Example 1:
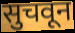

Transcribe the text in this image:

सुचवून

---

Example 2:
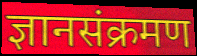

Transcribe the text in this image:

ज्ञानसंक्रमण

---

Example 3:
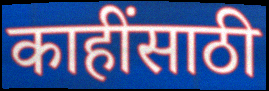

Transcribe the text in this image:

काहींसाठी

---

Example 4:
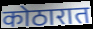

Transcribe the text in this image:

कोठारात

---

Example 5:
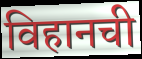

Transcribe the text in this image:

विहानची